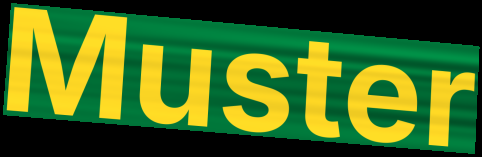
Muster